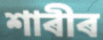
শাৰীৰ